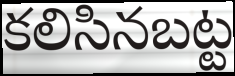
కలిసినబట్ట